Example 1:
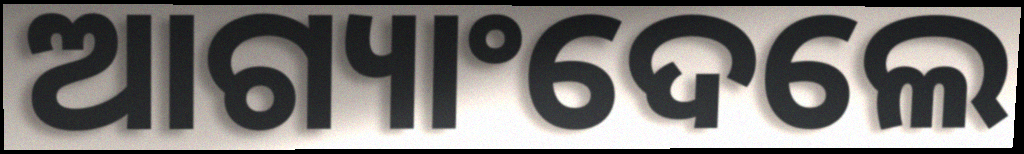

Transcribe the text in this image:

ଆଗ୍ୟାଂଦେଲେ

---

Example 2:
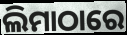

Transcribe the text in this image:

ଲିମାଠାରେ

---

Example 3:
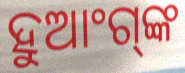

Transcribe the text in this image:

ହୁଆଂଗ୍‍ଙ୍କ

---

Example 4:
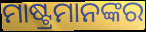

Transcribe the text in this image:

ମାଷ୍ଟ୍ରମାନଙ୍କର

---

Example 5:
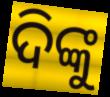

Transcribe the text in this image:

ଦିଙ୍କୁ